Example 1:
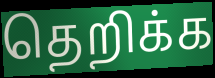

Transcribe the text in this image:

தெறிக்க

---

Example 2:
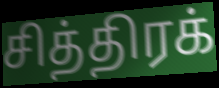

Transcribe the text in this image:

சித்திரக்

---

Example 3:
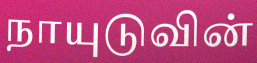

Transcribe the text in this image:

நாயுடுவின்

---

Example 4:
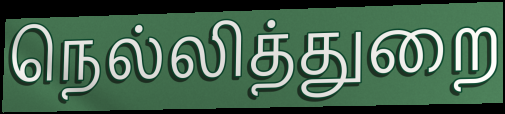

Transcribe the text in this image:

நெல்லித்துறை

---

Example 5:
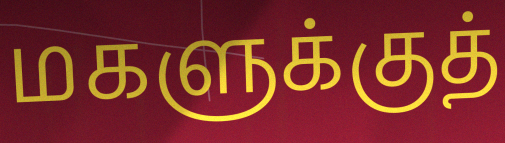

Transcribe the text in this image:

மகளுக்குத்